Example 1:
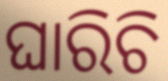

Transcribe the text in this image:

ଘାରିଚି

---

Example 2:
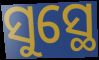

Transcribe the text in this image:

ସୁସ୍ଥେ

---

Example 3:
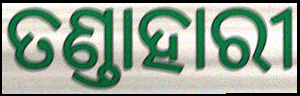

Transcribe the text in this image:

ତଣ୍ଡାହାରୀ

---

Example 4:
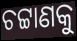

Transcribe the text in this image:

ଚଟ୍ଟାଣକୁ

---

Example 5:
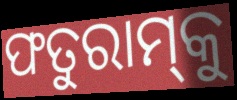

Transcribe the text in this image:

ଫତୁରାମ୍‌କୁ